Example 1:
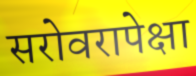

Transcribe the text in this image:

सरोवरापेक्षा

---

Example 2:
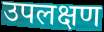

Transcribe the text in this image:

उपलक्षण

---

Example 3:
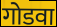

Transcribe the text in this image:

गोडवा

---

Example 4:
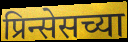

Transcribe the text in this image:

प्रिन्सेसच्या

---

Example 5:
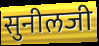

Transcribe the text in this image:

सुनीलजी